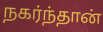
நகர்ந்தான்